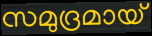
സമുദ്രമായ്